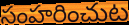
సంహరించుట